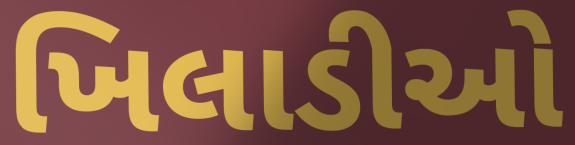
ખિલાડીઓ